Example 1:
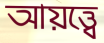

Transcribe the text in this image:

আয়ত্ত্বে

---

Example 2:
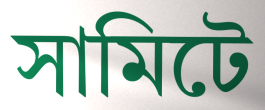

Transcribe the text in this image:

সামিটে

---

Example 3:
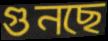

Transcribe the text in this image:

গুনছে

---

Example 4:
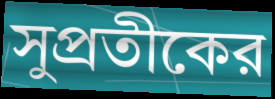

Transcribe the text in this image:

সুপ্রতীকের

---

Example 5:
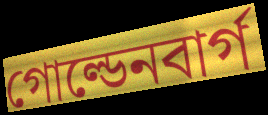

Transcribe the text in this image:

গোল্ডেনবার্গ